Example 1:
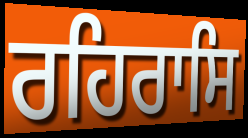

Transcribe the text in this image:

ਰਹਿਰਾਸਿ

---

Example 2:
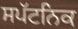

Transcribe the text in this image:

ਸਪੱਟਨਿਕ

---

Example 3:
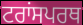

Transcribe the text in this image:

ਟਰਾਂਸਪਰਥ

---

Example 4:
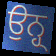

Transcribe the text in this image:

ਉਨ੍ਹ੍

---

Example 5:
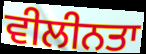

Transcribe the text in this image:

ਵੀਲੀਨਤਾ